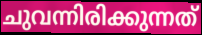
ചുവന്നിരിക്കുന്നത്